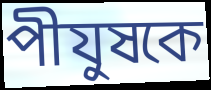
পীযুষকে